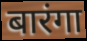
बारंगा